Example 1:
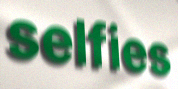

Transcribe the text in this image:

selfies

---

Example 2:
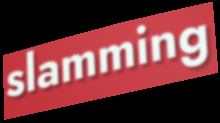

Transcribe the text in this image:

slamming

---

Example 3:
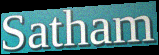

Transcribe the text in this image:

Satham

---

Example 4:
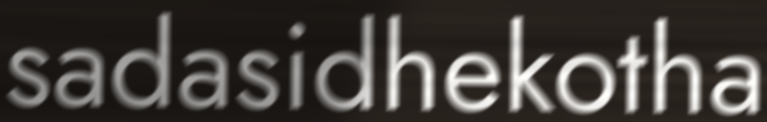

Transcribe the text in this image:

sadasidhekotha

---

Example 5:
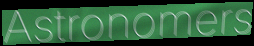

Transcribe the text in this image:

Astronomers